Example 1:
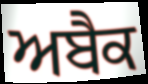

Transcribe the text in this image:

ਅਬੈਕ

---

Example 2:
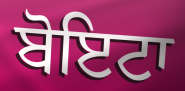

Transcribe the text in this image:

ਬੋਇਟਾ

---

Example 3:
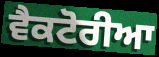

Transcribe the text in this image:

ਵੈਕਟੋਰੀਆ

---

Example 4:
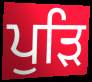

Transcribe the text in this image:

ਪੁੜਿ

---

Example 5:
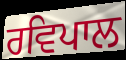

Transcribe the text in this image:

ਰਵਿਪਾਲ